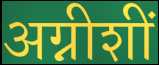
अग्नीशीं